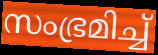
സംഭ്രമിച്ച്